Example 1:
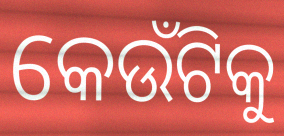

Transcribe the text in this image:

କେଉଁଟିକୁ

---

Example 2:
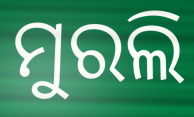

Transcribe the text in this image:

ମୁରଲି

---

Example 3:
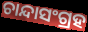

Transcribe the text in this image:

ଚାନ୍ଦାସଂଗ୍ରହ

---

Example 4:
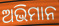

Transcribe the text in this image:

ଅଭିମାନ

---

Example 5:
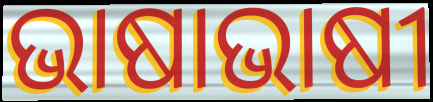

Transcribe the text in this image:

ଭାଷାଭାଷୀ